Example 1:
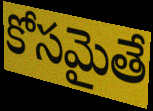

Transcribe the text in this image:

కోసమైతే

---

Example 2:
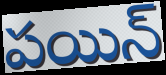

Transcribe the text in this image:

పయిన్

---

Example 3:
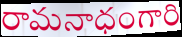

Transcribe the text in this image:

రామనాధంగారి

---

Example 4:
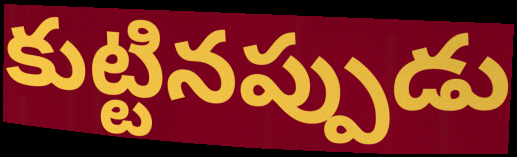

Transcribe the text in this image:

కుట్టినప్పుడు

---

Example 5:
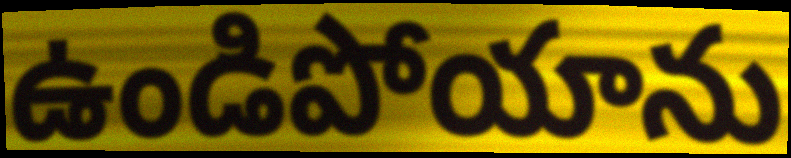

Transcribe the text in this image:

ఉండిపోయాను